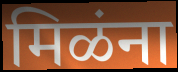
मिळंना